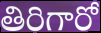
తిరిగారో